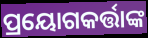
ପ୍ରୟୋଗକର୍ତ୍ତାଙ୍କ